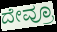
ದೇವ್ರೂ